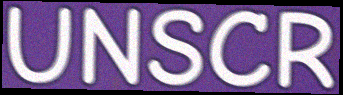
UNSCR